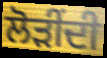
ਲੋੜੀਂਦੀ